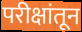
परीक्षांतून